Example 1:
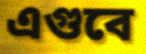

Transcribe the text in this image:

এগুবে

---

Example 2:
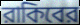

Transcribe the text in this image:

রাকিবের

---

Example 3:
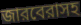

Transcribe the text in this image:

জারবেরাসহ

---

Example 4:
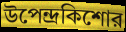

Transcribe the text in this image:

উপেন্দ্রকিশোর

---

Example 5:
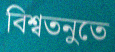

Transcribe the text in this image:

বিশ্বতনুতে